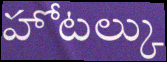
హోటల్కు